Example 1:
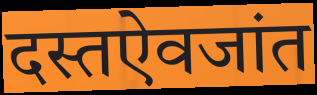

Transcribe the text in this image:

दस्तऐवजांत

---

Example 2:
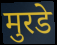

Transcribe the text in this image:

मुरडे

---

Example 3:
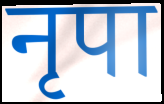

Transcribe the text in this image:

नृपा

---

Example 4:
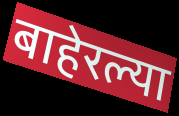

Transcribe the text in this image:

बाहेरल्या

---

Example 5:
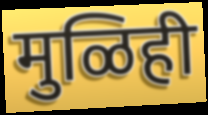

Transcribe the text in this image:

मुळिही